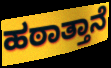
ಹಠಾತ್ತಾನೆ